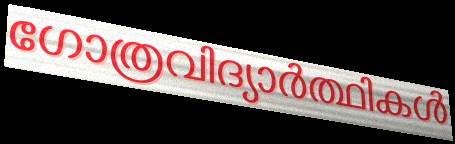
ഗോത്രവിദ്യാർത്ഥികൾ